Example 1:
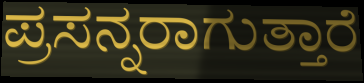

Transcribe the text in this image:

ಪ್ರಸನ್ನರಾಗುತ್ತಾರೆ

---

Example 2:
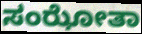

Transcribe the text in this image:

ಸಂಝೋತಾ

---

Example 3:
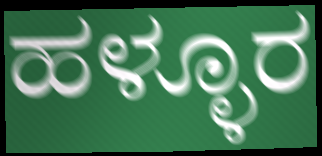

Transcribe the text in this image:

ಹಳ್ಳೂರ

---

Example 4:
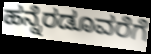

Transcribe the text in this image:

ಹನ್ನೆರಡೂವರೆಗೆ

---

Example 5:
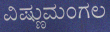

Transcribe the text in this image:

ವಿಷ್ಣುಮಂಗಲ